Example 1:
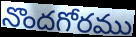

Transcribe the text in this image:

నొందగోరము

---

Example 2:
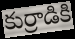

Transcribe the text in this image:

కుర్రాడికి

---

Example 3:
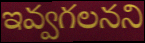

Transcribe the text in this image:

ఇవ్వగలనని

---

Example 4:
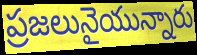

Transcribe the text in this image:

ప్రజలునైయున్నారు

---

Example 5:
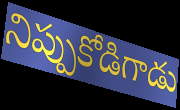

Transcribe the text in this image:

నిప్పుకోడిగాడు